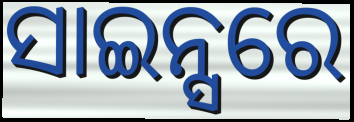
ସାଇନ୍ସରେ